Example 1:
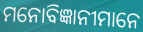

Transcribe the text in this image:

ମନୋବିଜ୍ଞାନୀମାନେ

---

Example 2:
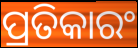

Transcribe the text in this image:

ପ୍ରତିକାରଂ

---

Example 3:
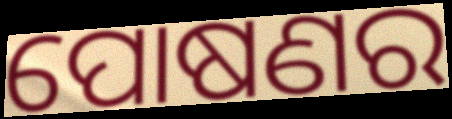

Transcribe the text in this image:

ପୋଷଣର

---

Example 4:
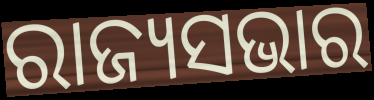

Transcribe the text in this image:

ରାଜ୍ୟସଭାର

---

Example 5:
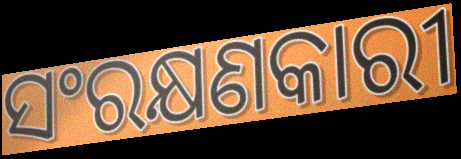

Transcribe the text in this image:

ସଂରକ୍ଷଣକାରୀ